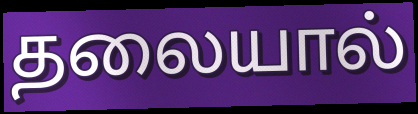
தலையால்